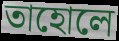
তাহোলে